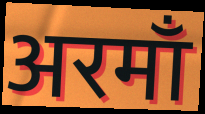
अरमाँ